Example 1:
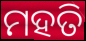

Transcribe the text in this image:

ମହତି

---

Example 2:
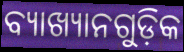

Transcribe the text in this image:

ବ୍ୟାଖ୍ୟାନଗୁଡ଼ିକ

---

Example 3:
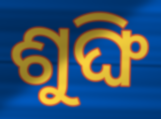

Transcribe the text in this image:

ଶୁଙ୍ଘି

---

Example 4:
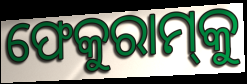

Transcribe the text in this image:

ଫେକୁରାମ୍‌କୁ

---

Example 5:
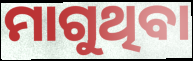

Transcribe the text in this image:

ମାଗୁଥିବା